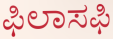
ಫಿಲಾಸಫಿ